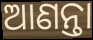
ଆଣନ୍ତା